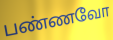
பண்ணவோ